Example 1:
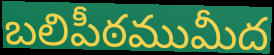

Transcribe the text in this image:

బలిపీఠముమీద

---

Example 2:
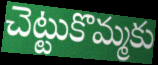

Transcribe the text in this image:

చెట్టుకొమ్మకు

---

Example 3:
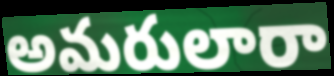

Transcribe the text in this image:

అమరులారా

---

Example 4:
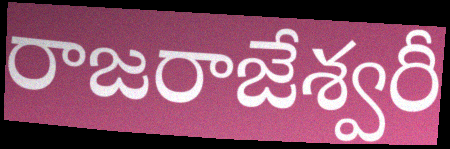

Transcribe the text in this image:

రాజరాజేశ్వరీ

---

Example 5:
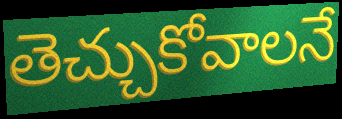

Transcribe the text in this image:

తెచ్చుకోవాలనే